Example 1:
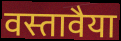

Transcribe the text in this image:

वस्तावैया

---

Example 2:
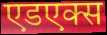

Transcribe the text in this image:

एडएक्स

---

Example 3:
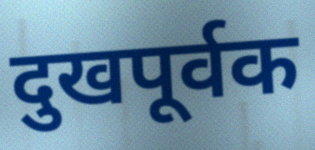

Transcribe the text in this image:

दुखपूर्वक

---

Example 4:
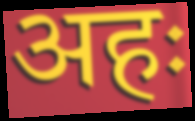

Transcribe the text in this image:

अहः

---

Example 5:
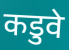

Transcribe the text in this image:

कडुवे